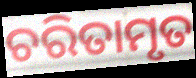
ଚରିତାମୃତ